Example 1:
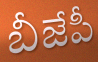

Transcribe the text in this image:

బీజేపీ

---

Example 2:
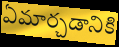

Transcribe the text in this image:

ఏమార్చడానికి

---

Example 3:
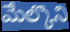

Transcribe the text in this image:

మేల్కొని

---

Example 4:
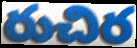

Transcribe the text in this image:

రుచిర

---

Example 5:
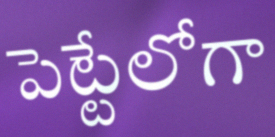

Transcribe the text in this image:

పెట్టేలోగా